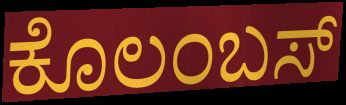
ಕೊಲಂಬಸ್